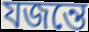
যজন্তে